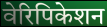
वेरिपिकेशन